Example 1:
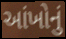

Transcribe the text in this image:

આંખોનું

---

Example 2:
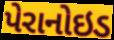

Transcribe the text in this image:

પેરાનોઇડ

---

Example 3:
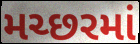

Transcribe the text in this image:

મચ્છરમાં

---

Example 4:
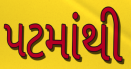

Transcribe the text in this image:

પટમાંથી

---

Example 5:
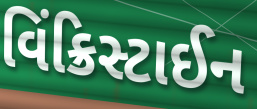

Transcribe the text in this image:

વિંક્રિસ્ટાઈન